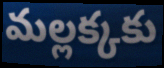
మల్లక్కకు